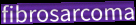
fibrosarcoma